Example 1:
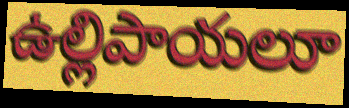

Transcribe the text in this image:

ఉల్లిపాయలూ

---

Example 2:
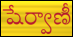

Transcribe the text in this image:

షేర్వాణీ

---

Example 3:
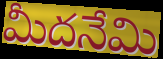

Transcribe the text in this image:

మీదనేమి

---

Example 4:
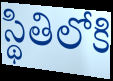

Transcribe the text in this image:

స్థితిలోకి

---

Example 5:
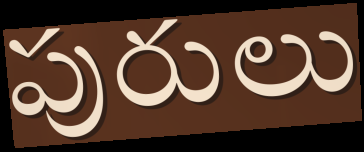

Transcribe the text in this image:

పురులు